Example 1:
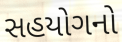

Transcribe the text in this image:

સહયોગનો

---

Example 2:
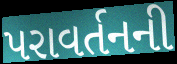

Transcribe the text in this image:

પરાવર્તનની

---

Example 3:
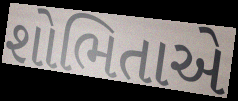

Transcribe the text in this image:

શોભિતાએ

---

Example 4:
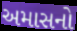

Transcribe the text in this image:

અમાસનો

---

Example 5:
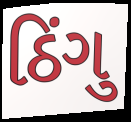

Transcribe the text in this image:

ઠિંગુ